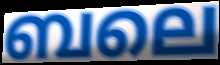
ബലെ